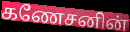
கணேசனின்